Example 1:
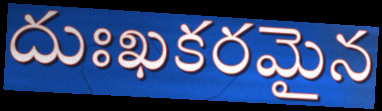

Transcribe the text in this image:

దుఃఖకరమైన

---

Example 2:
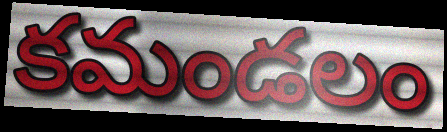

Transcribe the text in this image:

కమండలం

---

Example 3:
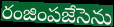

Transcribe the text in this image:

రంజింపజేసెను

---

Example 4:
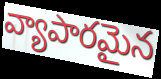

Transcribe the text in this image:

వ్యాపారమైన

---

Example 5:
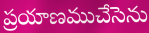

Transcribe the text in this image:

ప్రయాణముచేసెను